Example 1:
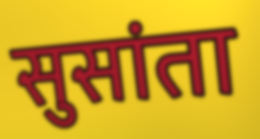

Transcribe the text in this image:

सुसांता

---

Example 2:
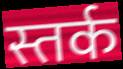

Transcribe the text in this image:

स्तर्क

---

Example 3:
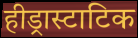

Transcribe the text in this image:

हीड्रास्टाटिक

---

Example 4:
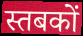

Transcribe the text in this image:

स्तबकों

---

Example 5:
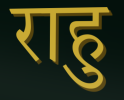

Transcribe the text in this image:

राहु